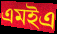
এমইএ